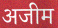
अजीम